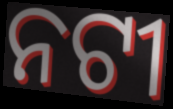
ନଟୀ